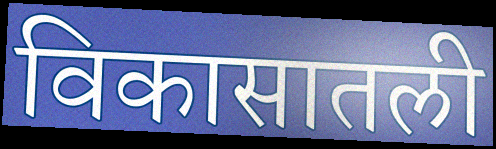
विकासातली